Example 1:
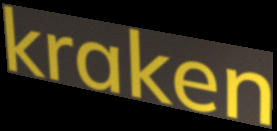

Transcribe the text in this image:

kraken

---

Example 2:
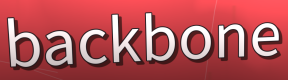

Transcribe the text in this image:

backbone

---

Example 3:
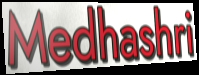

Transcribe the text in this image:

Medhashri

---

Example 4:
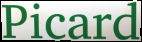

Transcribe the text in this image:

Picard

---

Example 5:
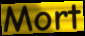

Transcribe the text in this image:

Mort